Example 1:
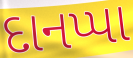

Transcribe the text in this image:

દાનપ્પા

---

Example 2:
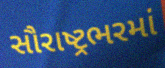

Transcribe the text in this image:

સૌરાષ્ટ્રભરમાં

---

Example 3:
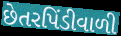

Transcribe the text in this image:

છેતરપિંડીવાળી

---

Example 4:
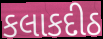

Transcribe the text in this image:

કલાકદીઠ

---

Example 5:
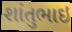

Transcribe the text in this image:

શાંતુભાઇ